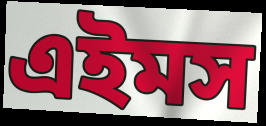
এইমস